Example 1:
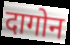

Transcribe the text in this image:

दागोन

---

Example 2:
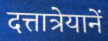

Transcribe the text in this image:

दत्तात्रेयानें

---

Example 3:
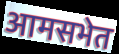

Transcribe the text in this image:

आमसभेत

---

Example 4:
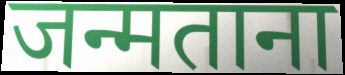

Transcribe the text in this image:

जन्मताना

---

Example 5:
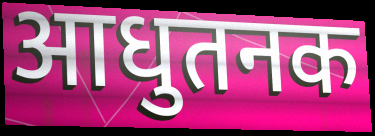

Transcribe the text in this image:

आधुतनक